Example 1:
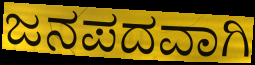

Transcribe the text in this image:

ಜನಪದವಾಗಿ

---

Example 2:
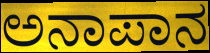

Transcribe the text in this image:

ಅನಾಪಾನ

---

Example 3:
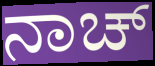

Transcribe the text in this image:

ನಾಚ್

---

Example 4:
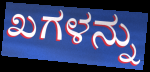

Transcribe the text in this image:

ಖಗಳನ್ನು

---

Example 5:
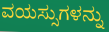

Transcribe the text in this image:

ವಯಸ್ಸುಗಳನ್ನು